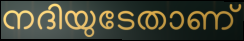
നദിയുടേതാണ്